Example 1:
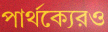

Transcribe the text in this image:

পার্থক্যেরও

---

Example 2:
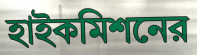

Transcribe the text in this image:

হাইকমিশনের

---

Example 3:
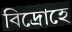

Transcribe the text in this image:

বিদ্রোহে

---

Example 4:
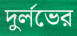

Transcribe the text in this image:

দুর্লভের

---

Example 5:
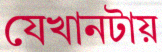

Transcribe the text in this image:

যেখানটায়